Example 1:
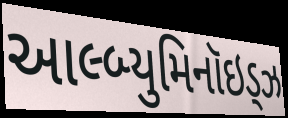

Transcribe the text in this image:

આલ્બ્યુમિનૉઇડ્ઝ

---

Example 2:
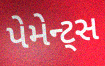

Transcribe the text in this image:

પેમેન્ટ્સ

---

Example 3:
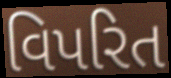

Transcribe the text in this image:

વિપરિત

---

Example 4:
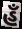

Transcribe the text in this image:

હઁ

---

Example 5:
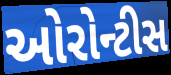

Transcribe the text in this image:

ઓરોન્ટીસ